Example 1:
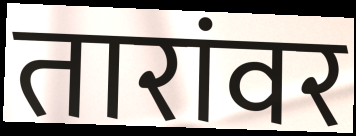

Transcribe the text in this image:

तारांवर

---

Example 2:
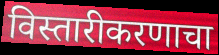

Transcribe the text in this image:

विस्तारीकरणाचा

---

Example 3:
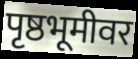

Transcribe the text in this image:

पृष्ठभूमीवर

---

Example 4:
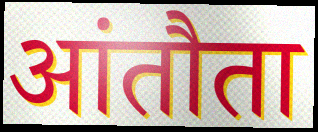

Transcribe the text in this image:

आंतौता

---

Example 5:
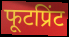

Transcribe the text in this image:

फूटप्रिंट